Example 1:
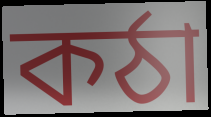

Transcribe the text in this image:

কঠা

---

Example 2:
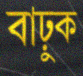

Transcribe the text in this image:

বাঢ়ুক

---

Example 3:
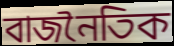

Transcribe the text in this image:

বাজনৈতিক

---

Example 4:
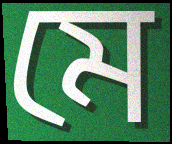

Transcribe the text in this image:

মে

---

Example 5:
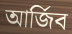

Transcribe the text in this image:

আৰ্জিব